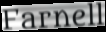
Farnell